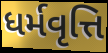
ધર્મવૃત્તિ